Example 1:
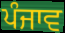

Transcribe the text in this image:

ਪੰਜਾਵ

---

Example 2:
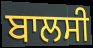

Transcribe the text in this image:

ਬਾਲਸੀ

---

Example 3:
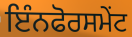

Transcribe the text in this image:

ਇੰਨਫੋਰਸਮੇਂਟ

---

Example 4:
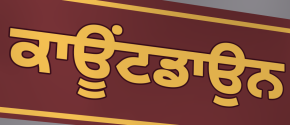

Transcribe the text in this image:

ਕਾਊਂਟਡਾਉਨ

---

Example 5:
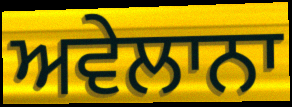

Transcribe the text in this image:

ਅਵੇਲਾਨਾ